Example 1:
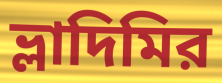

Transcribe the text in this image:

ভ্লাদিমির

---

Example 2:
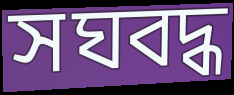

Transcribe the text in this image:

সঘবদ্ধ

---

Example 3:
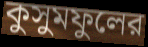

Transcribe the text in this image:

কুসুমফুলের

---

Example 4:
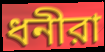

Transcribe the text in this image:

ধনীরা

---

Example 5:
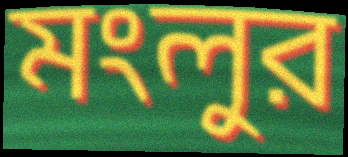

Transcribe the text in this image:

মংলুর